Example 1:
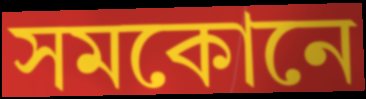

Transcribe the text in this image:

সমকোনে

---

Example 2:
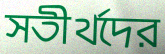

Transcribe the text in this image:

সতীর্থদের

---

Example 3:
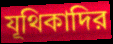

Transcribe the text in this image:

যূথিকাদির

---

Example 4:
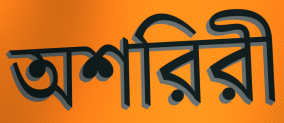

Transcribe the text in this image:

অশরিরী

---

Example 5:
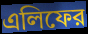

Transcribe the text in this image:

এলিফের